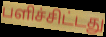
பளிச்சிட்டது